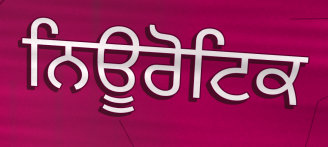
ਨਿਊਰੋਟਿਕ